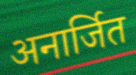
अनार्जित